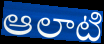
ఆలాటి